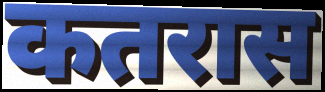
कतरास